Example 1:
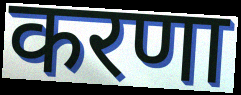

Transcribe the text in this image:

करणा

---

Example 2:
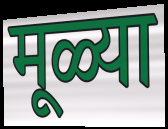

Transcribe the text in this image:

मूळ्या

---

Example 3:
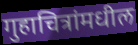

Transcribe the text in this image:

गुहाचित्रांमधील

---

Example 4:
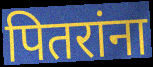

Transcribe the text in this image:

पितरांना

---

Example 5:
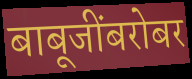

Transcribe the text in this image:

बाबूजींबरोबर